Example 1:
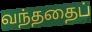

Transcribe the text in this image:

வந்ததைப்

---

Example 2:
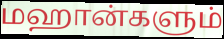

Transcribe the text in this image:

மஹான்களும்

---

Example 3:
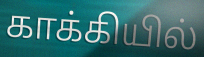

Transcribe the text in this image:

காக்கியில்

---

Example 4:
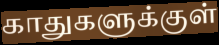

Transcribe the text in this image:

காதுகளுக்குள்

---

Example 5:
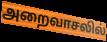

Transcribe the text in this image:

அறைவாசலில்